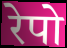
रेपो